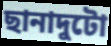
ছানাদুটো